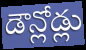
డౌన్లోడ్లు